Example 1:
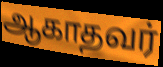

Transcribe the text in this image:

ஆகாதவர்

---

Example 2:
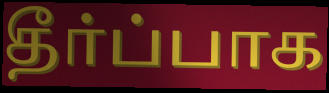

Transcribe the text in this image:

தீர்ப்பாக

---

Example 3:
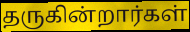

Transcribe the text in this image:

தருகின்றார்கள்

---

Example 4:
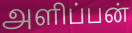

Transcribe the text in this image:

அளிப்பன்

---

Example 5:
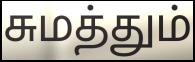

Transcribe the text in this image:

சுமத்தும்